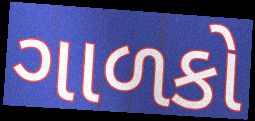
ગાળકો